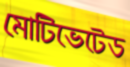
মোটিভেটেড